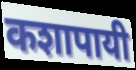
कशापायी